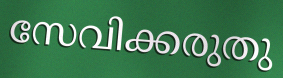
സേവിക്കരുതു